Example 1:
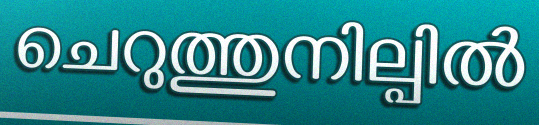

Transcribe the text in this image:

ചെറുത്തുനില്പിൽ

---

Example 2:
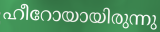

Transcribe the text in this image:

ഹീറോയായിരുന്നു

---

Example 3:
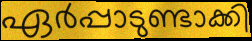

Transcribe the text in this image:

ഏർപ്പാടുണ്ടാക്കി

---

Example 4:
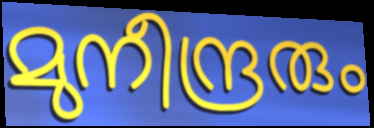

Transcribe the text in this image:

മുനീന്ദ്രരും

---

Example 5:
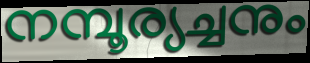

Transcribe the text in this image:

നമ്പൂര്യച്ചനും